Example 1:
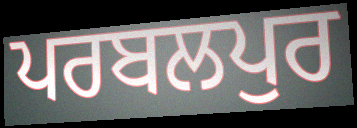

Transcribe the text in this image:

ਪਰਬਲਪੁਰ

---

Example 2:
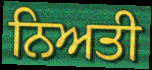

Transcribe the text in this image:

ਨਿਅਤੀ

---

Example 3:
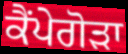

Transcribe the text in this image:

ਕੈਂਪੇਗੋੜਾ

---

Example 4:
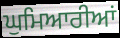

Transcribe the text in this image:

ਘੁਮਿਆਰੀਆਂ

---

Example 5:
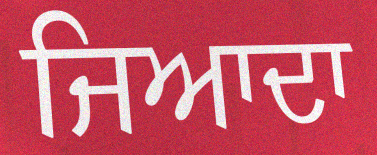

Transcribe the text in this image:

ਜਿਆਦਾ